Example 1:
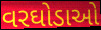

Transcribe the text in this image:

વરઘોડાઓ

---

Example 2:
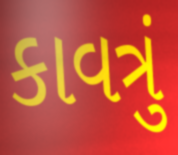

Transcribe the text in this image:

કાવત્રું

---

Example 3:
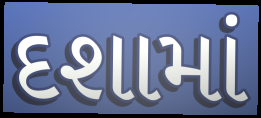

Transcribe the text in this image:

દશામાં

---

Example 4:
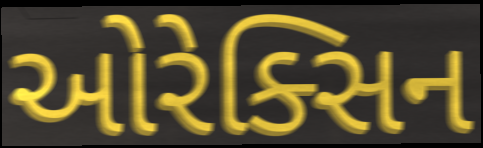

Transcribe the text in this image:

ઓરેક્સિન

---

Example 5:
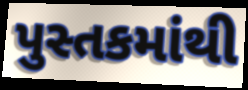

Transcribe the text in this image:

પુસ્તકમાંથી